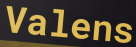
Valens